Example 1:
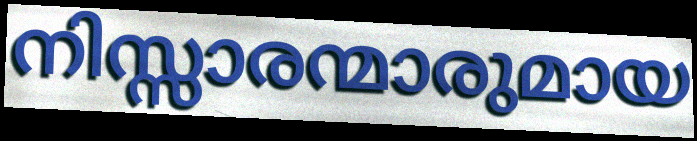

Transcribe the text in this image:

നിസ്സാരന്മാരുമായ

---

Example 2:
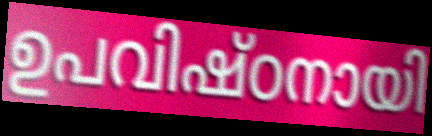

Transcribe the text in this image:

ഉപവിഷ്ഠനായി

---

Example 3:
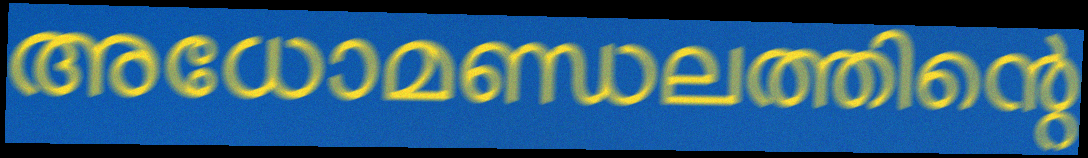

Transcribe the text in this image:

അധോമണ്ഡലത്തിന്റെ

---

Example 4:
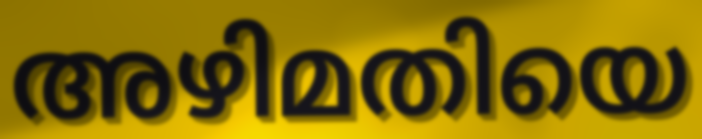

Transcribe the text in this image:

അഴിമതിയെ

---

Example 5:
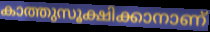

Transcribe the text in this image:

കാത്തുസൂക്ഷിക്കാനാണ്